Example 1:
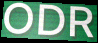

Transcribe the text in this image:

ODR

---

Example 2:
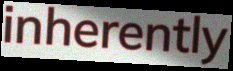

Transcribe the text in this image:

inherently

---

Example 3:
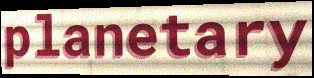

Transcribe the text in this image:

planetary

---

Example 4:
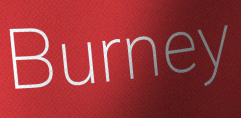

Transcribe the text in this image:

Burney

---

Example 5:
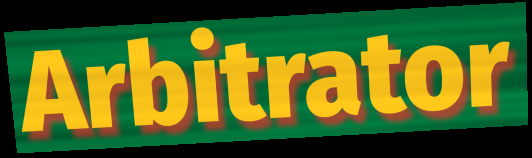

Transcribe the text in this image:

Arbitrator